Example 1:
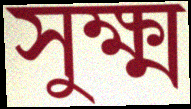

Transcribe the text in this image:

সুক্ষ্ম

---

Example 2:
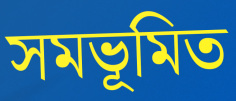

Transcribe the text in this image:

সমভূমিত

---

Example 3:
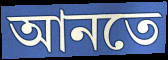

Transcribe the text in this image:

আনতে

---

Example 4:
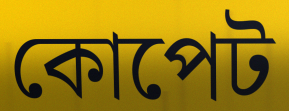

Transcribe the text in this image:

কোপেট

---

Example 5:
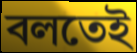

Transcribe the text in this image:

বলতেই